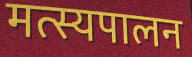
मत्स्यपालन